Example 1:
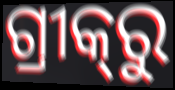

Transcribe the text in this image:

ଗ୍ରୀକ୍‌ରୁ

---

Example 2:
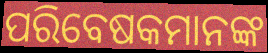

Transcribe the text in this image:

ପରିବେଷକମାନଙ୍କ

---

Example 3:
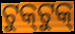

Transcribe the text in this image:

ଟୁକ୍‌ଟୁକ୍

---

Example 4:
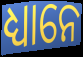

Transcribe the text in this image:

ଧ୍ୟାନେ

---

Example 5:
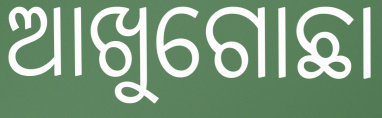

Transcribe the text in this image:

ଆଖୁଗୋଛା